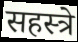
सहस्त्रे